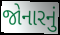
જોનારનું